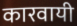
कारवायी